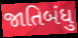
જાતિબંધુ